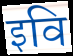
इवि